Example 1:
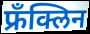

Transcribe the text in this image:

फ्रँक्लिन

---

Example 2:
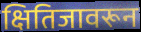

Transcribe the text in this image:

क्षितिजावरून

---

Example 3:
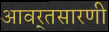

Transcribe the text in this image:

आवर्तसारणी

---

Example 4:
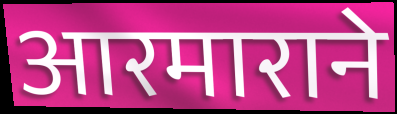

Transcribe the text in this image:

आरमाराने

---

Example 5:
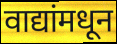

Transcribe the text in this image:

वाद्यांमधून